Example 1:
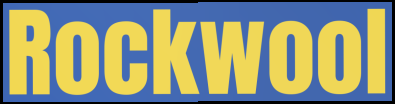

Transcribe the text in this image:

Rockwool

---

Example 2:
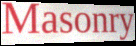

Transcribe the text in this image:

Masonry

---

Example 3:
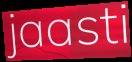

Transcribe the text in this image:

jaasti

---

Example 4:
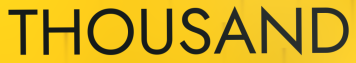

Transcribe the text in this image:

THOUSAND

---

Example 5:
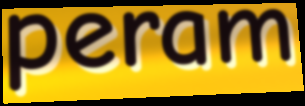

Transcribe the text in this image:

peram